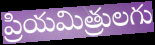
ప్రియమిత్రులగు